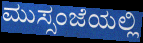
ಮುಸ್ಸಂಜೆಯಲ್ಲಿ